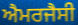
ਐਮਰਜੈਸੀ